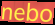
nebo